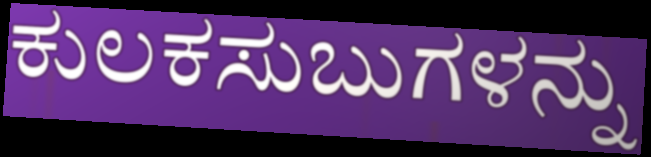
ಕುಲಕಸುಬುಗಳನ್ನು